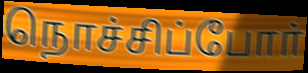
நொச்சிப்போர்